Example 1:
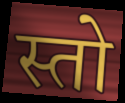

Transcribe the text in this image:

स्तो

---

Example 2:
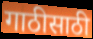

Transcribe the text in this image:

गाठीसाठी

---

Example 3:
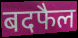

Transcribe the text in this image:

बदफैल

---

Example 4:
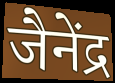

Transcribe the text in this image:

जैनेंद्र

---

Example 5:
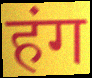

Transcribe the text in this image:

हंग